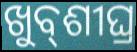
ଖୁବ୍‌ଶୀଘ୍ର